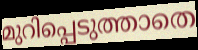
മുറിപ്പെടുത്താതെ